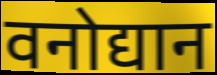
वनोद्यान